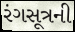
રંગસૂત્રની